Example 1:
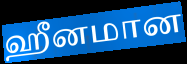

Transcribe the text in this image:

ஹீனமான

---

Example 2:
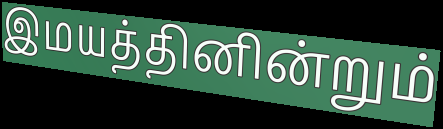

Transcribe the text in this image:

இமயத்தினின்றும்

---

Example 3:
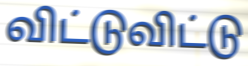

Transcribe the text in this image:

விட்டுவிட்டு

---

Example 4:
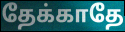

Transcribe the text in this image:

தேக்காதே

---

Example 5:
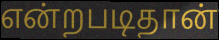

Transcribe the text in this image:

என்றபடிதான்